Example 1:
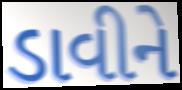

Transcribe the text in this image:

ડાવીને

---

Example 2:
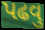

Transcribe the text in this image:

પઢવુ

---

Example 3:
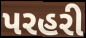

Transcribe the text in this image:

પરહરી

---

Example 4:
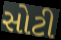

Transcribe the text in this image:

સોટી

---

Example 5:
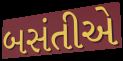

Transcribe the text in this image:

બસંતીએ